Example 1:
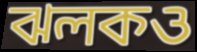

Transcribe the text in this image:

ঝলকও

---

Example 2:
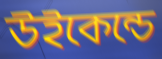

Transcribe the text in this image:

উইকেন্ডে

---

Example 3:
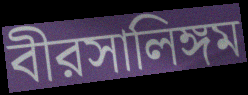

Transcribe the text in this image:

বীরসালিঙ্গম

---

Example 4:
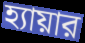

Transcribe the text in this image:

হ্যায়ার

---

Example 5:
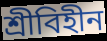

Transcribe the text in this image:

শ্রীবিহীন